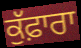
ਕੁੱਫ਼ਾਰਾ